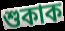
শুকাক